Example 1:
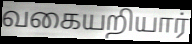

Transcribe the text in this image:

வகையறியார்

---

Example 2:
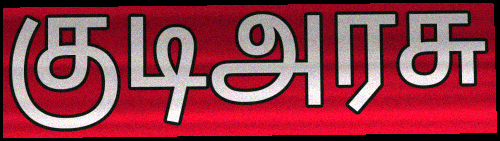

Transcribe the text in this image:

குடிஅரசு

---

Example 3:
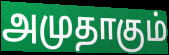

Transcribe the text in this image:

அமுதாகும்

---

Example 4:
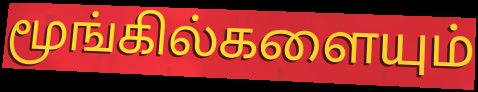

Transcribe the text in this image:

மூங்கில்களையும்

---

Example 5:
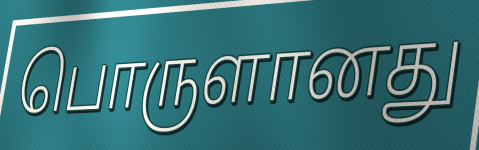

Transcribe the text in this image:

பொருளானது